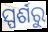
ସ୍ପର୍ଶରୁ